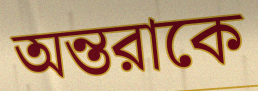
অন্তরাকে